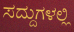
ಸದ್ದುಗಳಲ್ಲಿ